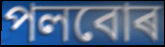
পলবোৰ